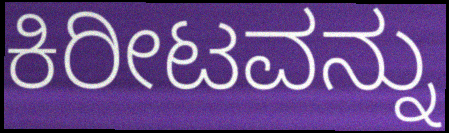
ಕಿರೀಟವನ್ನು